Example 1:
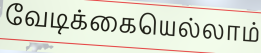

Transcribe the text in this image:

வேடிக்கையெல்லாம்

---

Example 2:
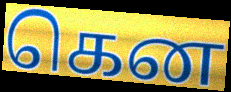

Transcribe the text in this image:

கென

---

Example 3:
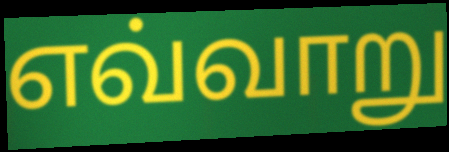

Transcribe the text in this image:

எவ்வாறு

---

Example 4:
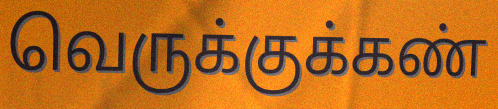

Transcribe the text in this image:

வெருக்குக்கண்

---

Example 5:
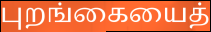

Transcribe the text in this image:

புறங்கையைத்